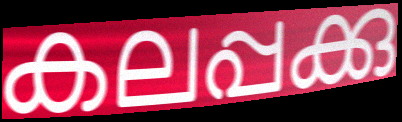
കലപ്പക്കു